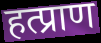
हत्प्राण